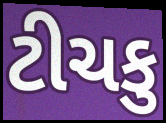
ટીચકુ